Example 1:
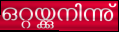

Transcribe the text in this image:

ഒറ്റയ്ക്കുനിന്നു്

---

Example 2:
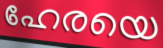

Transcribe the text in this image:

ഹേരയെ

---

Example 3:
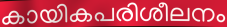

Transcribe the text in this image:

കായികപരിശീലനം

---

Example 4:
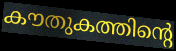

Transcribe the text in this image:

കൗതുകത്തിന്റെ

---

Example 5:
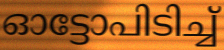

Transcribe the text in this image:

ഓട്ടോപിടിച്ച്